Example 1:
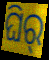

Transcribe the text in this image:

ଘିର୍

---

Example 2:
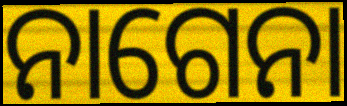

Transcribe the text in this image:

ନାଗେନା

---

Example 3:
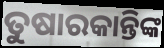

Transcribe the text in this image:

ତୁଷାରକାନ୍ତିଙ୍କ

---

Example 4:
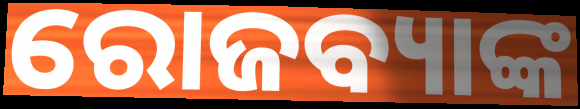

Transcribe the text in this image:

ରୋଜବ୍ୟାଙ୍କ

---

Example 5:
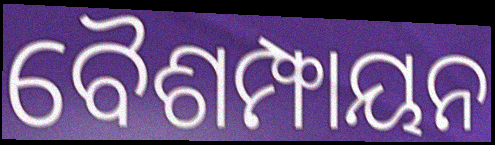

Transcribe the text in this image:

ବୈଶମ୍ଫାୟନ